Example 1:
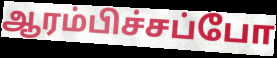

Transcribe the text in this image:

ஆரம்பிச்சப்போ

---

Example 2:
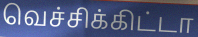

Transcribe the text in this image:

வெச்சிக்கிட்டா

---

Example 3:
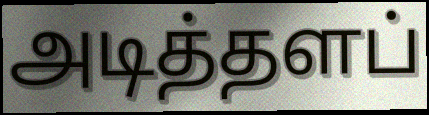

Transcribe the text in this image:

அடித்தளப்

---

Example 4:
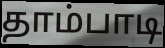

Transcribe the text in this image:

தாம்பாடி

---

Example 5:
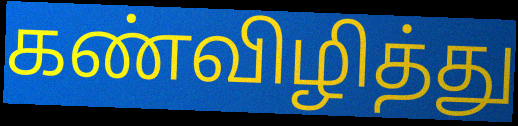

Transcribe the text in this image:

கண்விழித்து